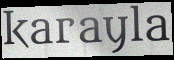
karayla